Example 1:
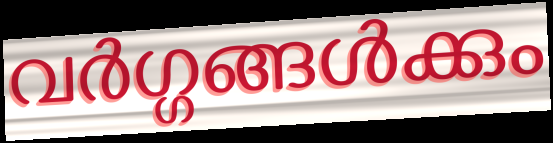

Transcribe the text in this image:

വർഗ്ഗങ്ങൾക്കും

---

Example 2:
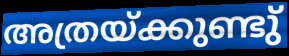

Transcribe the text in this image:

അത്രയ്ക്കുണ്ടു്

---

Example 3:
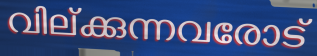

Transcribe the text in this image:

വില്ക്കുന്നവരോട്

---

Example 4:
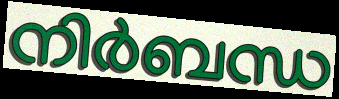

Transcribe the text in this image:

നിർബന്ധ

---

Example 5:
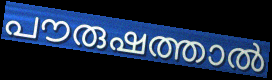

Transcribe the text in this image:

പൗരുഷത്താൽ